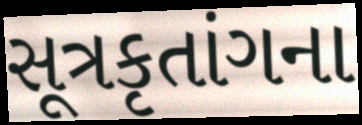
સૂત્રકૃતાંગના